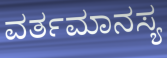
ವರ್ತಮಾನಸ್ಯ